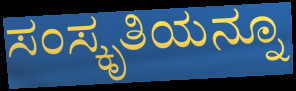
ಸಂಸ್ಕೃತಿಯನ್ನೂ